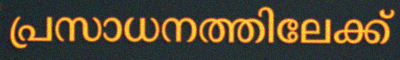
പ്രസാധനത്തിലേക്ക്